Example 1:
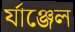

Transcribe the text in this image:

র্যাঞ্জেল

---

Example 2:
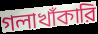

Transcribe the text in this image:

গলাখাঁকারি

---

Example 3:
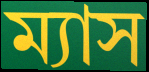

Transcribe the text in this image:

ম্যাস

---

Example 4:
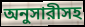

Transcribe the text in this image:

অনুসারীসহ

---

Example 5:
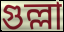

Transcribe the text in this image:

গুল্লা